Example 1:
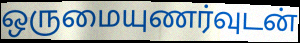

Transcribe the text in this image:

ஒருமையுணர்வுடன்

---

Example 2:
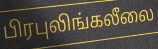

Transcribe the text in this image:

பிரபுலிங்கலீலை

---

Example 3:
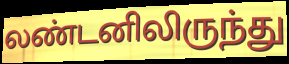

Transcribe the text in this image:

லண்டனிலிருந்து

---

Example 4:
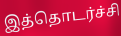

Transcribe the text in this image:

இத்தொடர்ச்சி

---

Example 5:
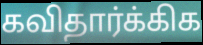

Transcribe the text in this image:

கவிதார்க்கிக